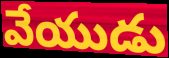
వేయుడు